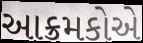
આક્રમકોએ